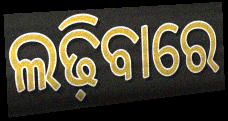
ଲଢ଼ିବାରେ